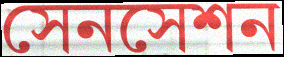
সেনসেশন